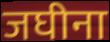
जघीना